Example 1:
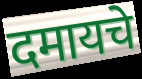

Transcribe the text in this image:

दमायचे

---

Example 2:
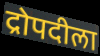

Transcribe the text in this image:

द्रोपदीला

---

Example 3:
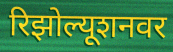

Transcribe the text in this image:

रिझोल्यूशनवर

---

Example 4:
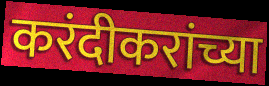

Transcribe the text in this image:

करंदीकरांच्या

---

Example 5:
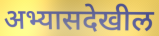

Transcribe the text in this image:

अभ्यासदेखील